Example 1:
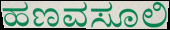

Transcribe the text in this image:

ಹಣವಸೂಲಿ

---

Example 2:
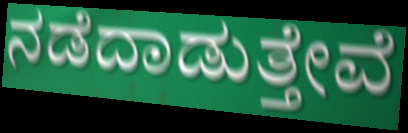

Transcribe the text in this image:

ನಡೆದಾಡುತ್ತೇವೆ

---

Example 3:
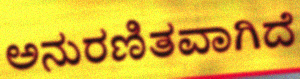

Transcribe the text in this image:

ಅನುರಣಿತವಾಗಿದೆ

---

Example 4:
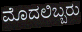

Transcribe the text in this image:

ಮೊದಲಿಬ್ಬರು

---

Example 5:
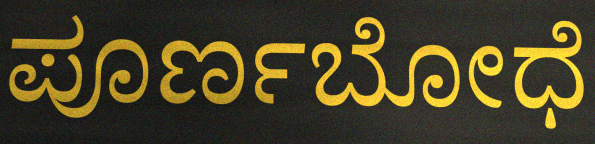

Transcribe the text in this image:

ಪೂರ್ಣಬೋಧೆ